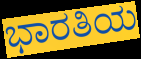
ಭಾರತಿಯ